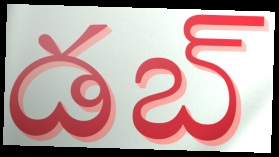
డబ్